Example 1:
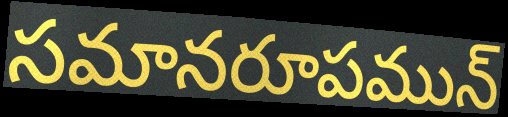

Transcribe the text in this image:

సమానరూపమున్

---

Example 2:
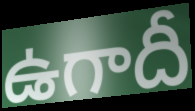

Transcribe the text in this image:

ఉగాదీ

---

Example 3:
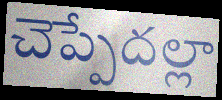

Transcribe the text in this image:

చెప్పేదల్లా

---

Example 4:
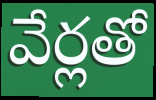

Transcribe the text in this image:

వేర్లతో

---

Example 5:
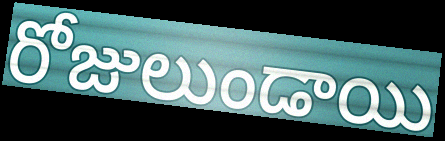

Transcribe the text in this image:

రోజులుండాయి